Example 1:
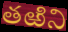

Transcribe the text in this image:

తఱిని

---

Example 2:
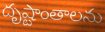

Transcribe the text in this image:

దృష్టాంతాలను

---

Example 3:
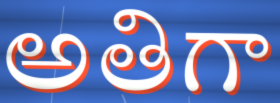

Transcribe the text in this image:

అతిగా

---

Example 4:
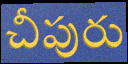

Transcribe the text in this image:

చీపురు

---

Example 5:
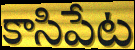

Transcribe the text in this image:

కాసిపేట